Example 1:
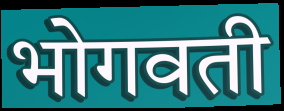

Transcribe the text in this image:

भोगवती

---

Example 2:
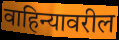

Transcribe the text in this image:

वाहिन्यावरील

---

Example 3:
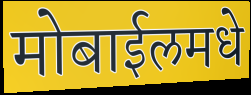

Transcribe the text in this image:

मोबाईलमधे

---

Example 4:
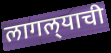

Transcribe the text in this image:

लागल्याची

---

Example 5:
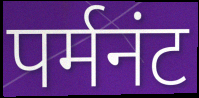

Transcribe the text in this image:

पर्मनंट